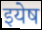
इयेष